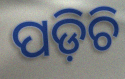
ପଡ଼ିଚି